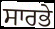
ਸਾਰਭੇ